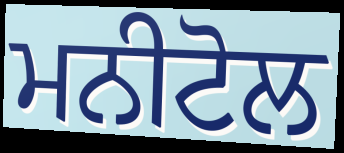
ਮਨੀਟੋਲ